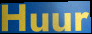
Huur